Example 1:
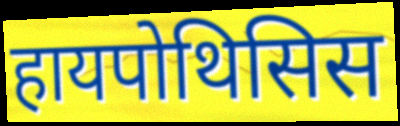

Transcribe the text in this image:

हायपोथिसिस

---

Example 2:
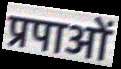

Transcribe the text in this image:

प्रपाओं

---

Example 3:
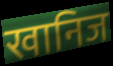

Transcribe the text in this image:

खानिज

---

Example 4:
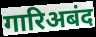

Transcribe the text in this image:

गारिअबंद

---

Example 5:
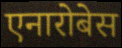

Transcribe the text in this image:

एनारोबेस